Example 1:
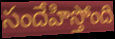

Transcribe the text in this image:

సందేహిస్తోంది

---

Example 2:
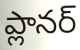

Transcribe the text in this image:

ప్లానర్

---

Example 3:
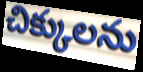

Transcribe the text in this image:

చిక్కులను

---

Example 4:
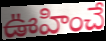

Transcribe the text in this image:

ఊహించే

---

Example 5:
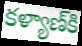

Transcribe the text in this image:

కళ్యాణ్‍కి